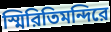
স্মিরিতিমন্দিরে